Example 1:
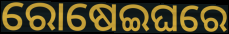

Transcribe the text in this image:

ରୋଷେଇଘରେ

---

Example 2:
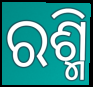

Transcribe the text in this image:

ରଶ୍ମି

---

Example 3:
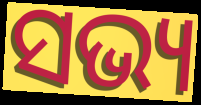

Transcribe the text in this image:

ସଭ୍ୟ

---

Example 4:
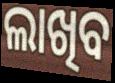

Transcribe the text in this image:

ଲାଖିବ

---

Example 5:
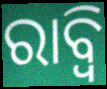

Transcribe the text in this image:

ରାବ୍ବି